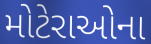
મોટેરાઓના